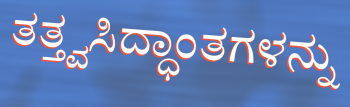
ತತ್ತ್ವಸಿದ್ಧಾಂತಗಳನ್ನು